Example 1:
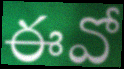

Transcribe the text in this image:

ఈవో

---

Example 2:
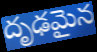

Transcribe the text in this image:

దృఢమైన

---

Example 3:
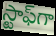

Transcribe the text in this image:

స్టాఫ్‌గా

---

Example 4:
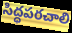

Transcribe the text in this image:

సిద్ధపరచాలి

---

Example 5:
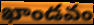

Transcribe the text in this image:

ఖాండవం